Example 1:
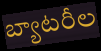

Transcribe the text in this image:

బ్యాటరీల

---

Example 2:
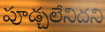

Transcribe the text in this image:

పూడ్చలేనిదని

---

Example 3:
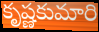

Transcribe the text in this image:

కృష్ణకుమారి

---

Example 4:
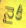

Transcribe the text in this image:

నైకీ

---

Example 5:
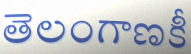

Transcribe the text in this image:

తెలంగాణకీ